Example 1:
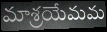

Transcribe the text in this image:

మాశ్రయేమమ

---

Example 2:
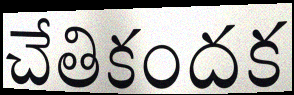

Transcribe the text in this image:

చేతికందక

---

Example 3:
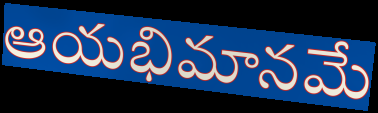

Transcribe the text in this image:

ఆయభిమానమే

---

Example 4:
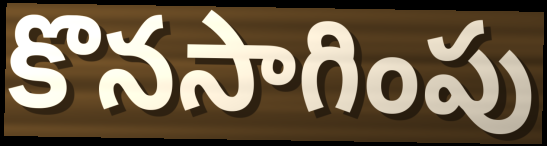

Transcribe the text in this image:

కొనసాగింపు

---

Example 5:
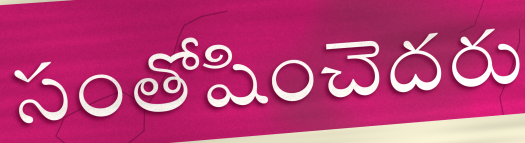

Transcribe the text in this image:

సంతోషించెదరు